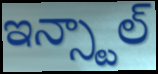
ఇన్స్టాల్